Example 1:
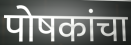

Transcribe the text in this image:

पोषकांचा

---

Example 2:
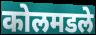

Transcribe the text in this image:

कोलमडले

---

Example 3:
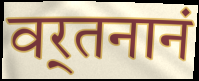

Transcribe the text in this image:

वर्तनानं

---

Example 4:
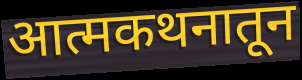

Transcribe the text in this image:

आत्मकथनातून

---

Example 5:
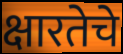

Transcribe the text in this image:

क्षारतेचे